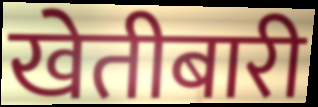
खेतीबारी